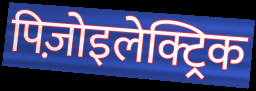
पिज़ोइलेक्ट्रिक